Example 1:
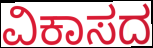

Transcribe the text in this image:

ವಿಕಾಸದ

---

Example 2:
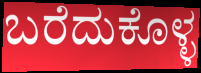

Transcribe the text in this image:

ಬರೆದುಕೊಳ್ಳ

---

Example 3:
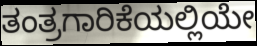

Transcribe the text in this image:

ತಂತ್ರಗಾರಿಕೆಯಲ್ಲಿಯೇ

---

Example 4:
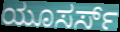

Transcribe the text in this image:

ಯೂಸರ್ಸ್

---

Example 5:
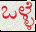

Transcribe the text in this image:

ಒಳ್ಳೆ